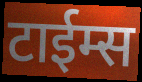
टाईम्स